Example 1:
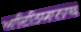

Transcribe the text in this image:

ਆਦਿਤਿਯਾਨਾਥ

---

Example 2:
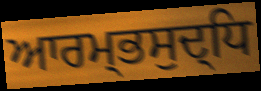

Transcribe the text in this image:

ਆਰਮ੍ਭਸੁਦ੍ਧਿ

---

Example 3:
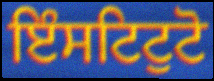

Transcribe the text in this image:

ਇੰਸਟਿਟੁਟੋ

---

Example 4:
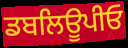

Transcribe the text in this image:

ਡਬਲਿਊਪੀਓ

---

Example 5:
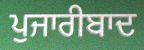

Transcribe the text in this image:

ਪੁਜਾਰੀਬਾਦ